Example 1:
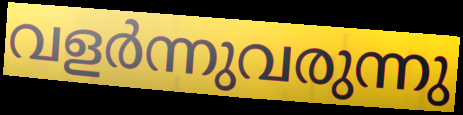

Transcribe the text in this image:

വളർന്നുവരുന്നു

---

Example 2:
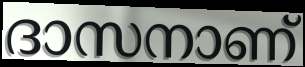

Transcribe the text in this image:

ദാസനാണ്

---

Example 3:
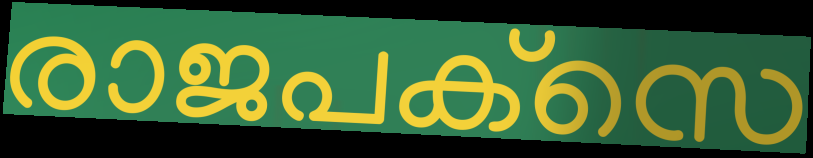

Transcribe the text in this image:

രാജപക്‌സെ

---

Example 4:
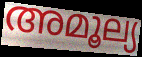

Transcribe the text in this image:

അമൂല്യ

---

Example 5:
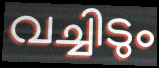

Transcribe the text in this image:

വച്ചിടും